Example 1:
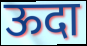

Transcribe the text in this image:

ऊदा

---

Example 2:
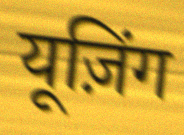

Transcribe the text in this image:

यूज़िंग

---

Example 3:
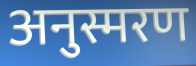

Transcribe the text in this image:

अनुस्मरण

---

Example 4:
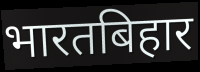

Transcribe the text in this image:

भारतबिहार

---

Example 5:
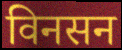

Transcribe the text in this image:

विनसन